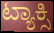
ಟ್ಯಾಕ್ಸಿ